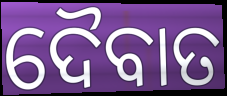
ଦୈବାତ